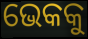
ଭେକକୁ